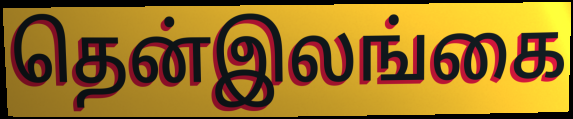
தென்இலங்கை